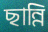
ছান্নি